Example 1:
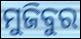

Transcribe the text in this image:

ମୁଜିବୁର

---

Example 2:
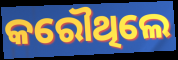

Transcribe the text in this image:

କରୌଥିଲେ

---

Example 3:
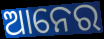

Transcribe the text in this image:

ଆନେର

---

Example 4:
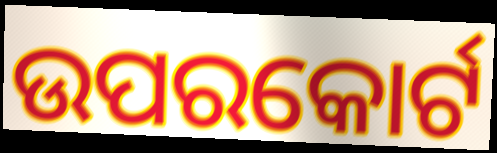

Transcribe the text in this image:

ଉପରକୋର୍ଟ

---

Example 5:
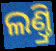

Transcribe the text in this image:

ଲଣ୍ତ୍ରି